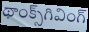
థాంక్స్‌గివింగ్